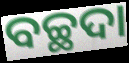
ବଚ୍ଛଦା